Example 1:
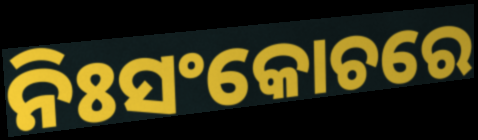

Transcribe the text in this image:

ନିଃସଂକୋଚରେ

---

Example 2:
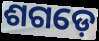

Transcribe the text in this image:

ଶଗଡ଼େ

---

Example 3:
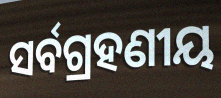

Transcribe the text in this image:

ସର୍ବଗ୍ରହଣୀୟ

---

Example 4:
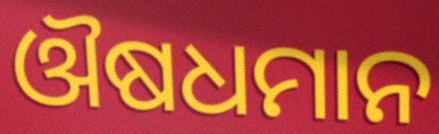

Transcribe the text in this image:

ଔଷଧମାନ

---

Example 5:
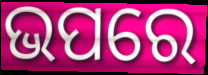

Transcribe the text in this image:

ଭପରେ